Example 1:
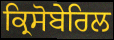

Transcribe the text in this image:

ਕ੍ਰਿਸੋਬੇਰਿਲ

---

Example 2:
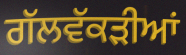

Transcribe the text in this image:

ਗੱਲਵੱਕੜੀਆਂ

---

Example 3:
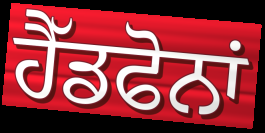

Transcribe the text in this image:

ਹੈੱਡਫੋਨਾਂ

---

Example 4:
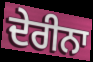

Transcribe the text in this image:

ਦੇਰੀਨਾ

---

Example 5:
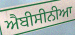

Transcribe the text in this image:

ਐਬੀਸੀਨੀਆ